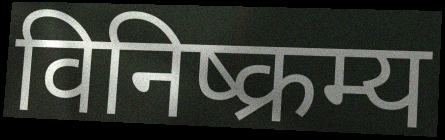
विनिष्क्रम्य